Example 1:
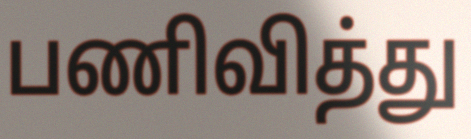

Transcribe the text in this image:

பணிவித்து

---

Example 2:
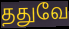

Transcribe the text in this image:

ததுவே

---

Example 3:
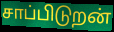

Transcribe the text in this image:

சாப்பிடுறன்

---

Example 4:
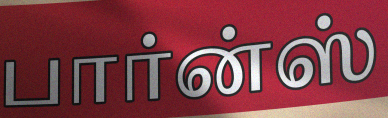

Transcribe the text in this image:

பார்ன்ஸ்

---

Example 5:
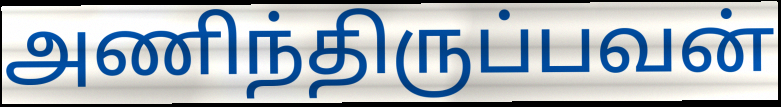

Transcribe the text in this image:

அணிந்திருப்பவன்